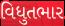
વિધુતભાર